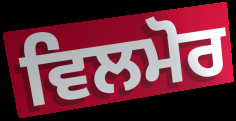
ਵਿਲਮੋਰ